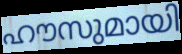
ഹൗസുമായി